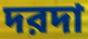
দরদা